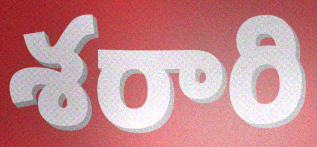
శరారి